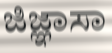
ಜಿಜ್ಞಾಸಾ